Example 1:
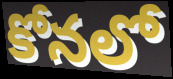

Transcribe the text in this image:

కోనలో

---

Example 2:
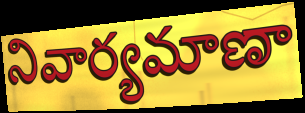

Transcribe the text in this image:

నివార్యమాణా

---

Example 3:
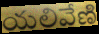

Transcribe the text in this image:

యలివేణి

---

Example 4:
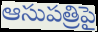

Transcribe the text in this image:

ఆసుపత్రిపై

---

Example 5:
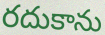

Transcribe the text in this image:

రదుకాను